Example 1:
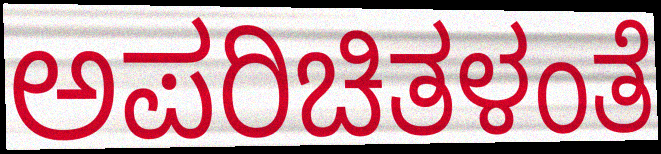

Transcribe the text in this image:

ಅಪರಿಚಿತಳಂತೆ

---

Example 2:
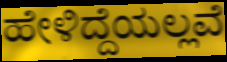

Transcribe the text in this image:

ಹೇಳಿದ್ದೆಯಲ್ಲವೆ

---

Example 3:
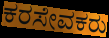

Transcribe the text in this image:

ಕರಸೇವಕರು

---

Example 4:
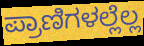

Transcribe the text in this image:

ಪ್ರಾಣಿಗಳಲ್ಲೆಲ್ಲ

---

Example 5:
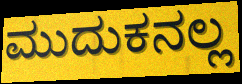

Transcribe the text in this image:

ಮುದುಕನಲ್ಲ